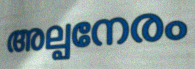
അല്പനേരം